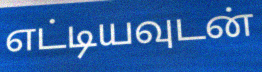
எட்டியவுடன்